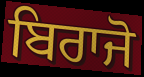
ਬਿਰਾਜੋ